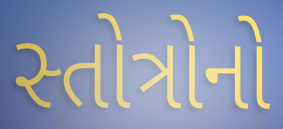
સ્તોત્રોનો